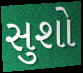
સુશો